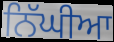
ਨਿੱਘੀਆ